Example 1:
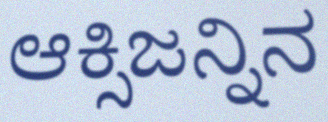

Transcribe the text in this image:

ಆಕ್ಸಿಜನ್ನಿನ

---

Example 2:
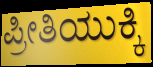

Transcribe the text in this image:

ಪ್ರೀತಿಯುಕ್ಕಿ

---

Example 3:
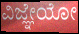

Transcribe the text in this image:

ವಿಜ್ಞೇಯೋ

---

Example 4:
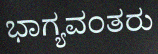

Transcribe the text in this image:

ಭಾಗ್ಯವಂತರು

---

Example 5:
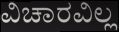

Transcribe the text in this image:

ವಿಚಾರವಿಲ್ಲ